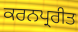
ਕਰਨਪ੍ਰਰੀਤ